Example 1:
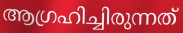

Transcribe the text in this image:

ആഗ്രഹിച്ചിരുന്നത്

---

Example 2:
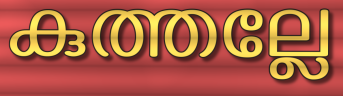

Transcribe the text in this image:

കുത്തല്ലേ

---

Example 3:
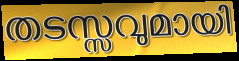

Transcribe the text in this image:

തടസ്സവുമായി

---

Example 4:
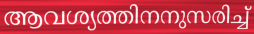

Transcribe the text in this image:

ആവശ്യത്തിനനുസരിച്ച്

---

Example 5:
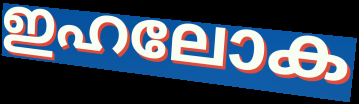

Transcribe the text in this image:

ഇഹലോക